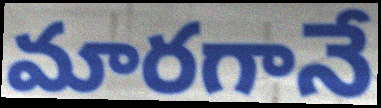
మారగానే